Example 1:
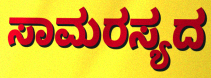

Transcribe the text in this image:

ಸಾಮರಸ್ಯದ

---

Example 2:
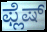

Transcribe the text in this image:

ಫ್ಲೆಷ್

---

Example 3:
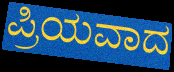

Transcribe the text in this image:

ಪ್ರಿಯವಾದ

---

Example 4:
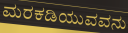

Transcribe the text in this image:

ಮರಕಡಿಯುವವನು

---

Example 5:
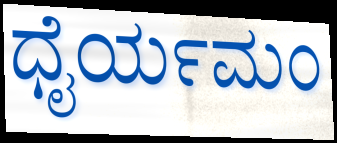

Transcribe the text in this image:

ಧೈರ್ಯಮಂ